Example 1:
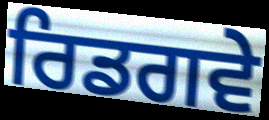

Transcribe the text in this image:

ਰਿਡਗਵੇ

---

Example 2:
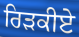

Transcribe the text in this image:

ਰਿੜਕੀਏ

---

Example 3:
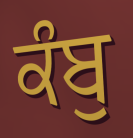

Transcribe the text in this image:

ਕੰਬੁ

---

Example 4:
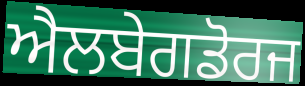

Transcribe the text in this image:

ਐਲਬੇਗਡੋਰਜ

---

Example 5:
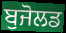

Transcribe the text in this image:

ਬੁਜੋਲਡ